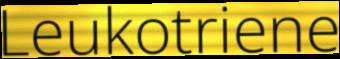
Leukotriene